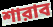
শারাব